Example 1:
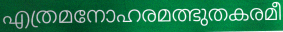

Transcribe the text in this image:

എത്രമനോഹരമത്ഭുതകരമീ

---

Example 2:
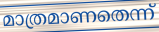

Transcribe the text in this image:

മാത്രമാണതെന്ന്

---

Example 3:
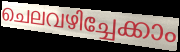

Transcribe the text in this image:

ചെലവഴിച്ചേക്കാം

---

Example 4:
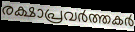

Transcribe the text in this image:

രക്ഷാപ്രവർത്തകർ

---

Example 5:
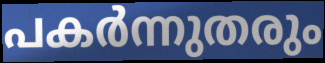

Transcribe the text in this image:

പകർന്നുതരും